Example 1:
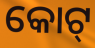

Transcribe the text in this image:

କୋଟ୍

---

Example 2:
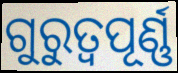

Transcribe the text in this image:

ଗୁରୁତ୍ବପୂର୍ଣ୍ଣ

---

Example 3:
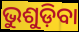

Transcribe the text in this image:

ଭୁଶୁଡ଼ିବା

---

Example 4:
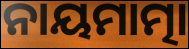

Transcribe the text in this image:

ନାୟମାତ୍ମା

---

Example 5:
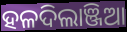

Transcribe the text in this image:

ହଳଦିଲାଞ୍ଜିଆ